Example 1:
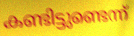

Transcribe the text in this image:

കണ്ടിട്ടുണ്ടെന്ന്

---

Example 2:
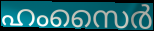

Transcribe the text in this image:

ഹംസൈർ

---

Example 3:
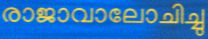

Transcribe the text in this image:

രാജാവാലോചിച്ചു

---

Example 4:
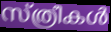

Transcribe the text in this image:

സ്‌ത്രീകൾ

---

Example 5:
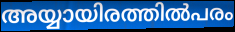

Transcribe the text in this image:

അയ്യായിരത്തിൽപരം